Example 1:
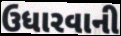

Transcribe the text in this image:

ઉધારવાની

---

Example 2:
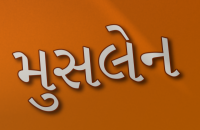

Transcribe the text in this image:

મુસલેન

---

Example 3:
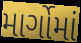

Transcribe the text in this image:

માર્ગોમાં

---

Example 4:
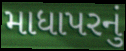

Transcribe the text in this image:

માધાપરનું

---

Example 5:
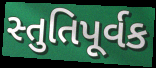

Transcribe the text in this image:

સ્તુતિપૂર્વક